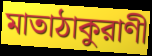
মাতাঠাকুরাণী